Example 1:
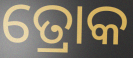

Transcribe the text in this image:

ତ୍ରୋକ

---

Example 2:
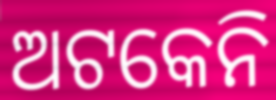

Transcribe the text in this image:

ଅଟକେନି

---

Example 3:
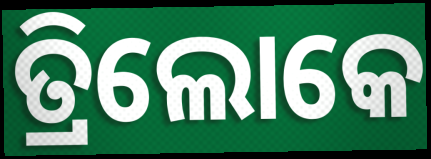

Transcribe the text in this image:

ତ୍ରିଲୋକେ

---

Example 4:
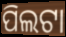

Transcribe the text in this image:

ପିଲଟା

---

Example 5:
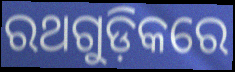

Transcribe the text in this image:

ରଥଗୁଡ଼ିକରେ